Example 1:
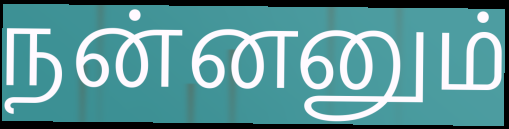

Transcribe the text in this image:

நன்னனும்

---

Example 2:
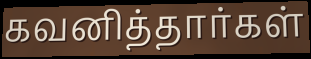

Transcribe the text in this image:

கவனித்தார்கள்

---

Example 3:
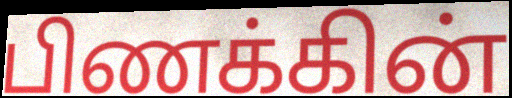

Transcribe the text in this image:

பிணக்கின்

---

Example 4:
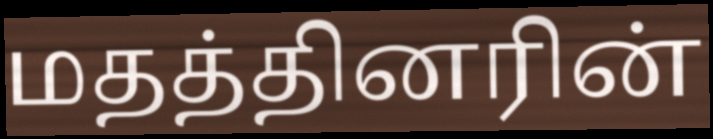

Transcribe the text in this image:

மதத்தினரின்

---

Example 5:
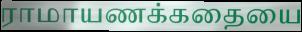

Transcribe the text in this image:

ராமாயணக்கதையை